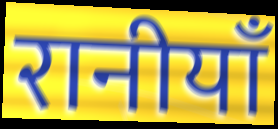
रानीयाँ